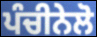
ਪੰਚੀਨੇਲੋ